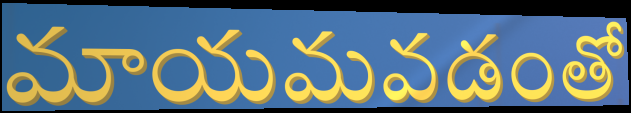
మాయమవడంతో